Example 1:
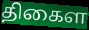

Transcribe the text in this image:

திகைள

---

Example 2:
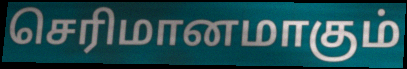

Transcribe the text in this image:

செரிமானமாகும்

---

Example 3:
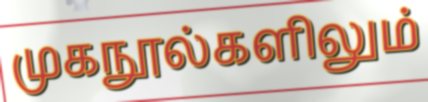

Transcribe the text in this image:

முகநூல்களிலும்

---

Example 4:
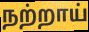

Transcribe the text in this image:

நற்றாய்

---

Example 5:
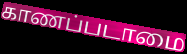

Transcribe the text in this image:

காணப்படாமை